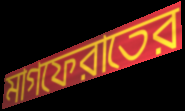
মাগফেরাতের